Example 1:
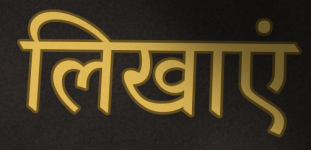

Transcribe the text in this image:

लिखाएं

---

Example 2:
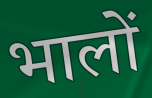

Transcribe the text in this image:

भालों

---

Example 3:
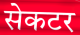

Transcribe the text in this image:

सेकटर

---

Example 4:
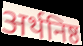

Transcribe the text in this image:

अर्थनिष्ठ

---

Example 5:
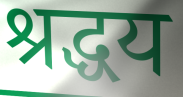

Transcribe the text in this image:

श्रद्धय